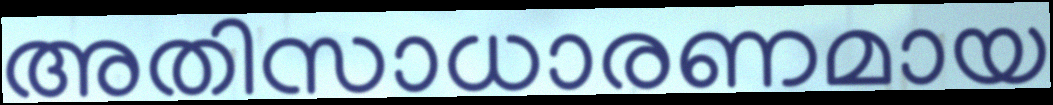
അതിസാധാരണമായ